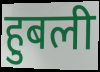
हुबली